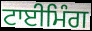
ਟਾਈਮਿੰਗ